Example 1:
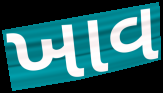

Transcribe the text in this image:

ખાવ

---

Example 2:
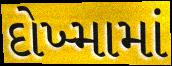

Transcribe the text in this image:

દોખ્મામાં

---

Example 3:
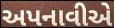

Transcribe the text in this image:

અપનાવીએ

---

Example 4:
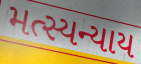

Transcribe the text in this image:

મત્સ્યન્યાય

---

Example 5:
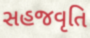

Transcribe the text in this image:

સહજવૃતિ